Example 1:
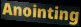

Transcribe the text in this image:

Anointing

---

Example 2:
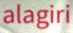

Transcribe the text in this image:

alagiri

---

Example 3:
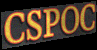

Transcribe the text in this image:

CSPOC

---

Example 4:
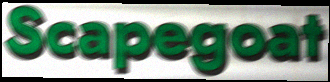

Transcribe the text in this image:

Scapegoat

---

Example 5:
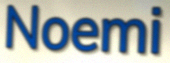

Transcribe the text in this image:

Noemi